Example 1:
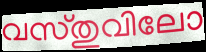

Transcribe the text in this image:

വസ്തുവിലോ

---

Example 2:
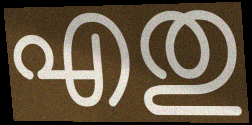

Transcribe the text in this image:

എതു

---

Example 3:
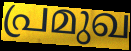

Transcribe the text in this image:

പ്രമുഖ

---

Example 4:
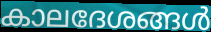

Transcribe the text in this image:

കാലദേശങ്ങൾ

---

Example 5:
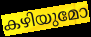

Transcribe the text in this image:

കഴിയുമോ